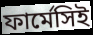
ফার্মেসিই